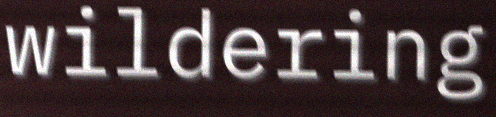
wildering